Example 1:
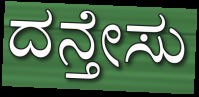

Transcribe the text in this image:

ದನ್ತೇಸು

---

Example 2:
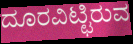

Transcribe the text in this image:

ದೂರವಿಟ್ಟಿರುವ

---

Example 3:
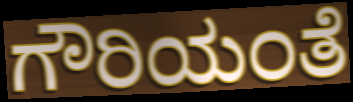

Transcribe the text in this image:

ಗೌರಿಯಂತೆ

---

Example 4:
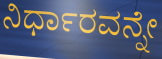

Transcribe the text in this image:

ನಿರ್ಧಾರವನ್ನೇ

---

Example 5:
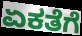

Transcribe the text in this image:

ಏಕತೆಗೆ